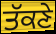
ਤੱਕਣੇ